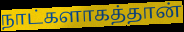
நாட்களாகத்தான்